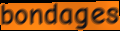
bondages